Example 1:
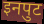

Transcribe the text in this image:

इनपुट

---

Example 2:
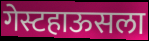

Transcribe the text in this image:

गेस्टहाऊसला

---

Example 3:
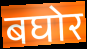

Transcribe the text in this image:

बघोर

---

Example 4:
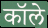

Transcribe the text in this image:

कॉले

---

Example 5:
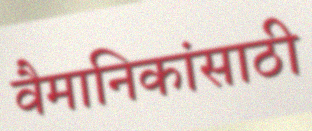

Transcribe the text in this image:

वैमानिकांसाठी